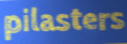
pilasters